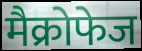
मैक्रोफेज